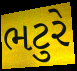
ભટુરે